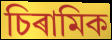
চিৰামিক